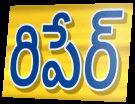
రిపేర్